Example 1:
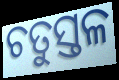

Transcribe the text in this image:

ଚତୁସ୍ତଳ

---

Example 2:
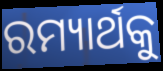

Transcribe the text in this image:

ରମ୍ୟାର୍ଥକୁ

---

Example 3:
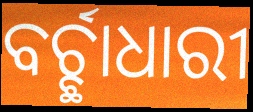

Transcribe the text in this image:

ବର୍ଚ୍ଛାଧାରୀ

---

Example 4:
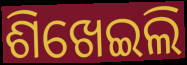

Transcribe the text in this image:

ଶିଖେଇଲି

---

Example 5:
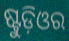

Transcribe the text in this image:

ଷ୍ଟୁଡ଼ିଓର